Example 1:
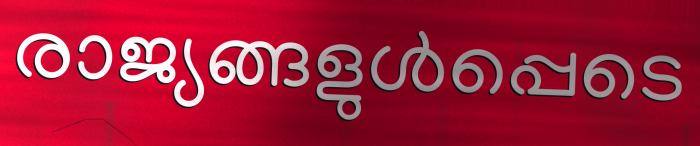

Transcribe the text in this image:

രാജ്യങ്ങളുൾപ്പെടെ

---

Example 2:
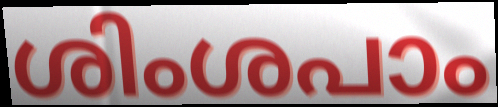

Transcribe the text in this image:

ശിംശപാം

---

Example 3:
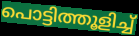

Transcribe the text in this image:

പൊട്ടിത്തൂളിച്ച്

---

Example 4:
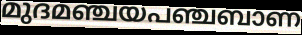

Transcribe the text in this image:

മുദമഞ്ചയപഞ്ചബാണ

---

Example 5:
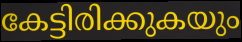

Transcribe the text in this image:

കേട്ടിരിക്കുകയും